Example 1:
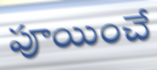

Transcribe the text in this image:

పూయించే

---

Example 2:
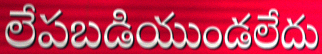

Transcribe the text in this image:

లేపబడియుండలేదు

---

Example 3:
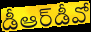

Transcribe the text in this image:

డీఆర్‌డీవో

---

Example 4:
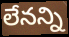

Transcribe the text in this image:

లేనన్ని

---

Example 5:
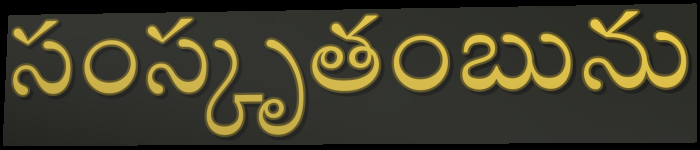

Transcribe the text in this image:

సంస్కృతంబును